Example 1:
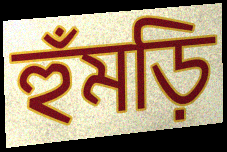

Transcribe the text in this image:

হুঁমড়ি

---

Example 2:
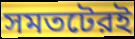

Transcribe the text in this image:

সমতটেরই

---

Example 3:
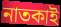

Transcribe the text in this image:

নাতকাই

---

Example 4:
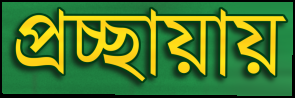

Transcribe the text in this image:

প্রচ্ছায়ায়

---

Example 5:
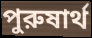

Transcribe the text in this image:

পুরুষার্থ